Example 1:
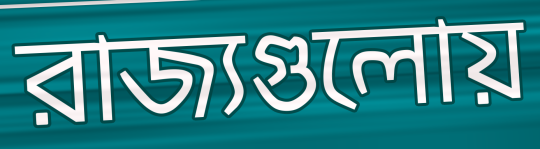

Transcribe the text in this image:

রাজ্যগুলোয়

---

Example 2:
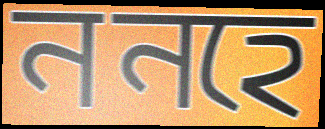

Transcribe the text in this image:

ননহে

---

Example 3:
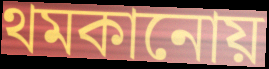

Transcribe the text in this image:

থমকানোয়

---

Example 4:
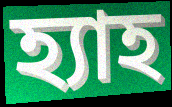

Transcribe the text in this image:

হ্যাহ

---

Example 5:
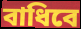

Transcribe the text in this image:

বাধিবে